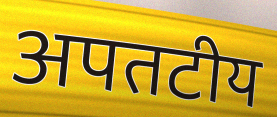
अपतटीय